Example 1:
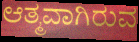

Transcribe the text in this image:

ಆತ್ಮವಾಗಿರುವ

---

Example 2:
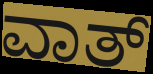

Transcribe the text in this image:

ವಾತ್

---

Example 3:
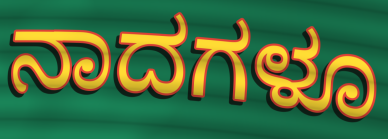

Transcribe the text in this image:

ನಾದಗಳೂ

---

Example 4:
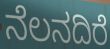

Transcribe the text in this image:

ನೆಲನದಿರೆ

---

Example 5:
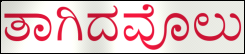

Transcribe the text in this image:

ತಾಗಿದವೊಲು